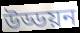
উড্ডয়ন